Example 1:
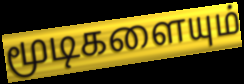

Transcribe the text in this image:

மூடிகளையும்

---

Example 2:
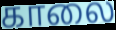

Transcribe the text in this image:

காலை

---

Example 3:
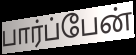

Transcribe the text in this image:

பார்ப்பேன்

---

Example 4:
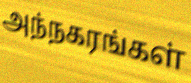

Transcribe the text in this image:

அந்நகரங்கள்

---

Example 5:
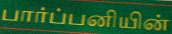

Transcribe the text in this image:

பார்ப்பனியின்